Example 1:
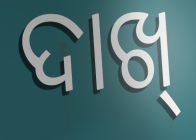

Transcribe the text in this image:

ଦାଖ୍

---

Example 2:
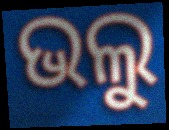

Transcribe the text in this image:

ଭଲୁ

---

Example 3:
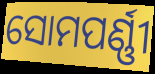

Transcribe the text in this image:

ସୋମପର୍ଣ୍ଣୀ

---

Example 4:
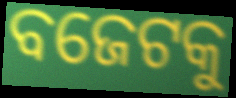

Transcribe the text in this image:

ବଜେଟକୁ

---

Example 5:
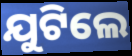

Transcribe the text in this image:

ଯୁଟିଲେ